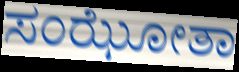
ಸಂಝೋತಾ